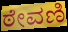
ಠೇವಣಿ